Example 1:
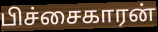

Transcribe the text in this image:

பிச்சைகாரன்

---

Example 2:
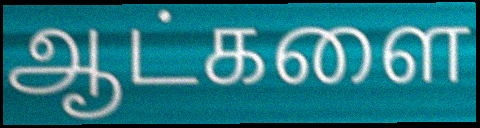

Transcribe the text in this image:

ஆட்களை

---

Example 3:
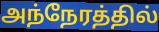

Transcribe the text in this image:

அந்நேரத்தில்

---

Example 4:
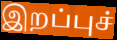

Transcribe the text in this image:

இறப்புச்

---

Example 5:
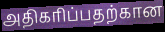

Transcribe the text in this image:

அதிகரிப்பதற்கான